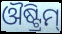
ଔଷ୍ଟ୍ରିମ୍